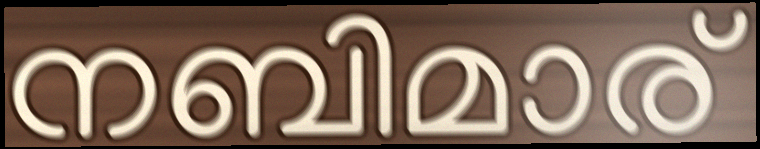
നബിമാര്